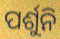
ପର୍ଶୁନି